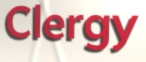
Clergy